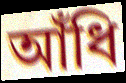
আঁধি